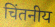
चिंतनीय